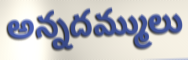
అన్నదమ్ములు